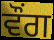
ਵੌਂਗ